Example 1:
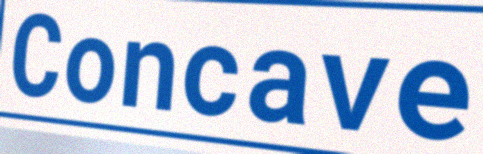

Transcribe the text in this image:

Concave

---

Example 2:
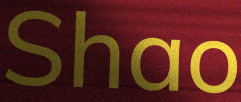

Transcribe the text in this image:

Shao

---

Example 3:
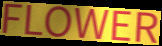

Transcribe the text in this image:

FLOWER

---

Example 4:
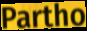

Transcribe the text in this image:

Partho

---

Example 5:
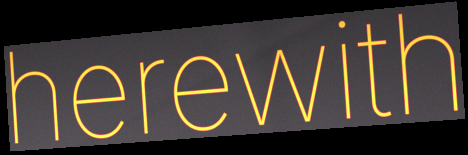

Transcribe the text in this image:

herewith